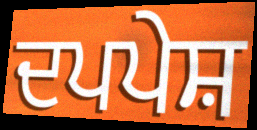
ਦਪਪੇਸ਼